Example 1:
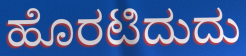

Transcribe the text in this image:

ಹೊರಟಿದುದು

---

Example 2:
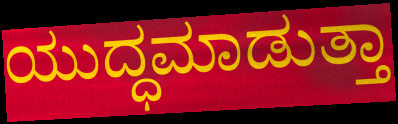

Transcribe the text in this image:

ಯುದ್ಧಮಾಡುತ್ತಾ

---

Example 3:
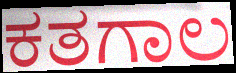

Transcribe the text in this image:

ಕತಗಾಲ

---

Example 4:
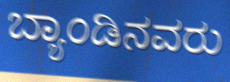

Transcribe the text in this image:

ಬ್ಯಾಂಡಿನವರು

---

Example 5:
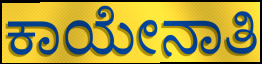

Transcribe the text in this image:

ಕಾಯೇನಾತಿ